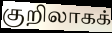
குறிலாகக்